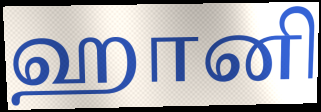
ஹானி